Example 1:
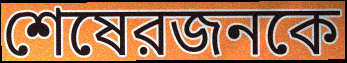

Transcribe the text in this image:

শেষেরজনকে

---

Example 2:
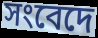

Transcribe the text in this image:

সংবেদে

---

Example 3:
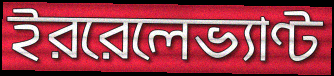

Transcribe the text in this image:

ইররেলেভ্যাণ্ট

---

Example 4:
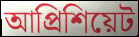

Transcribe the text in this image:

আপ্রিশিয়েট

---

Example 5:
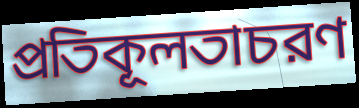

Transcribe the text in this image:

প্রতিকূলতাচরণ